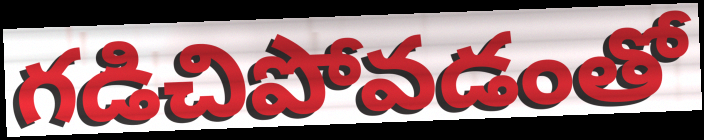
గడిచిపోవడంతో